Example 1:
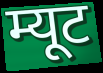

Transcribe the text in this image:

म्यूट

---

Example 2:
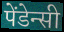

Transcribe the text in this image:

पेंडेन्सी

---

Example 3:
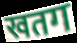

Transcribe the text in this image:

खतग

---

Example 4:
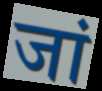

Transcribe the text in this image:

जां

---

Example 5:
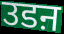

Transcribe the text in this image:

उडऩ